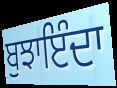
ਬੁਝਾਇੰਦਾ